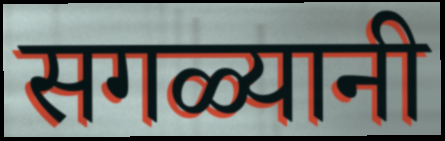
सगळ्यानी